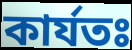
কাৰ্যতঃ